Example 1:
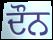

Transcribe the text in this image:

ਦੌਨ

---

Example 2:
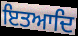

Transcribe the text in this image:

ਇਤਆਦਿ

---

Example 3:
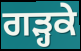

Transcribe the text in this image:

ਗੜ੍ਹਕੇ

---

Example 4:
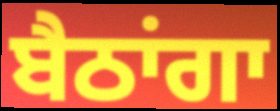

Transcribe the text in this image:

ਬੈਠਾਂਗਾ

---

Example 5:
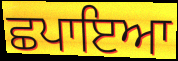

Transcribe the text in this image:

ਛਪਾਇਆ